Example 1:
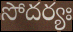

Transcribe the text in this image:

సోదర్యః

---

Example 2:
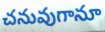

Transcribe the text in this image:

చనువుగానూ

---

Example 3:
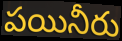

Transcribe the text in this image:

పయినీరు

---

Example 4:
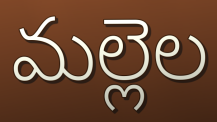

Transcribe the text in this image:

మల్లెల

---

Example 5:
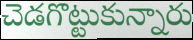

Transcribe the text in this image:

చెడగొట్టుకున్నారు